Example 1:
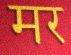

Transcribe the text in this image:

मर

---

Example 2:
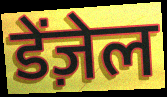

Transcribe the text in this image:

डेंज़ेल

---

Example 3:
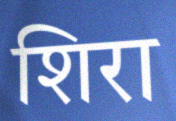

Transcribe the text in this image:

शिरा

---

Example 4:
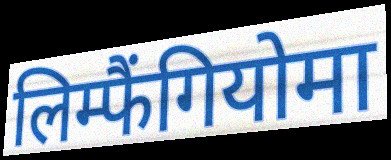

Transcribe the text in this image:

लिम्फैंगियोमा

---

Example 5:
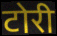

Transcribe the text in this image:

टोरी